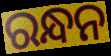
ରନ୍ଧନ